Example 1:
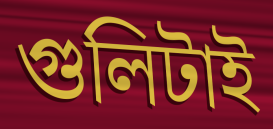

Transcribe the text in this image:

গুলিটাই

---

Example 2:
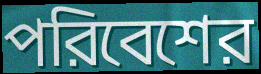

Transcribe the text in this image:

পরিবেশের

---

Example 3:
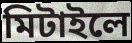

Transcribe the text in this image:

মিটাইলে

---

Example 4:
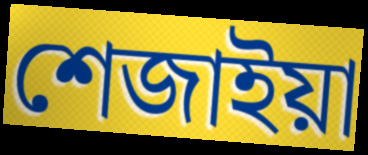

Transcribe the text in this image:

শেজাইয়া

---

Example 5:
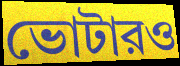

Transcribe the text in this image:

ভোটারও